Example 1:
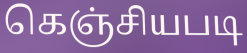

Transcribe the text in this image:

கெஞ்சியபடி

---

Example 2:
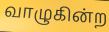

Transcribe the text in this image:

வாழுகின்ற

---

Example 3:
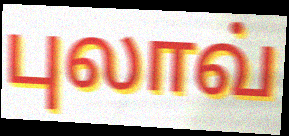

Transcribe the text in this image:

புலாவ்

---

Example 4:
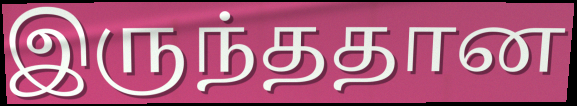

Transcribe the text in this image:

இருந்ததான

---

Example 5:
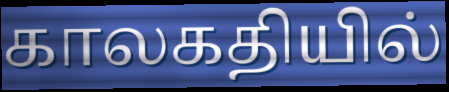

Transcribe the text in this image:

காலகதியில்